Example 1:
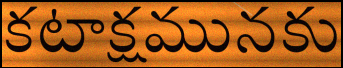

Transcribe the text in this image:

కటాక్షమునకు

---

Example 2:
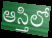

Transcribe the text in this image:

ఆస్తిలో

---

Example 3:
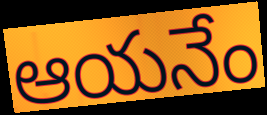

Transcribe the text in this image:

ఆయనేం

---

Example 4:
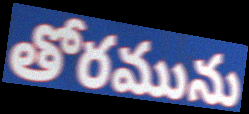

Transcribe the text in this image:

తోరమును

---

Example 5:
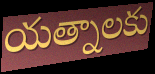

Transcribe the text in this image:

యత్నాలకు